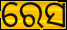
ରେସ